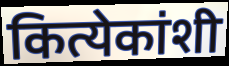
कित्येकांशी